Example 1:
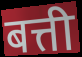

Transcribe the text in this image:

बत्ती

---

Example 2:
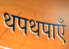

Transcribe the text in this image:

थपथपाएँ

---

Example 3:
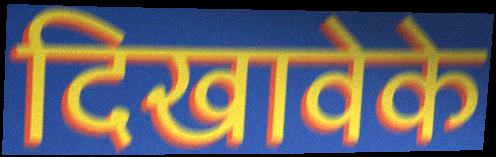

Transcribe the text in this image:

दिखावेके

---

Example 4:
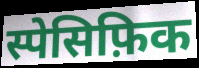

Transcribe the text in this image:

स्पेसिफ़िक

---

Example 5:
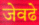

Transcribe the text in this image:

जेवढे